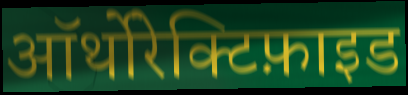
ऑर्थोरेक्टिफ़ाइड